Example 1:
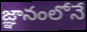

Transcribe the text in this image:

జ్ఞానంలోనే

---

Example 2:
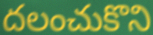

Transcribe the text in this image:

దలంచుకొని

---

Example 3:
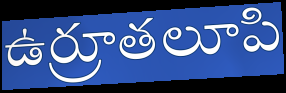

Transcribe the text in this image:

ఉర్రూతలూపి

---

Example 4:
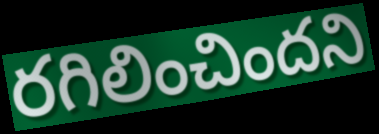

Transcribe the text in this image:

రగిలించిందని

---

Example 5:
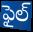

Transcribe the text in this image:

ఫైల్